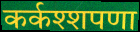
कर्कश्शपणा